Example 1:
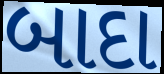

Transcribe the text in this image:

બાદા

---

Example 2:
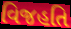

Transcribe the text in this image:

વિજહતિ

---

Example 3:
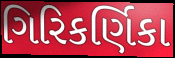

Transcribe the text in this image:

ગિરિકર્ણિકા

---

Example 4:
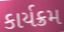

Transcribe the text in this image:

કાર્યક્રમ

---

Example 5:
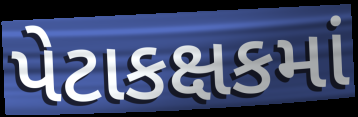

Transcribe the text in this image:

પેટાકક્ષકમાં